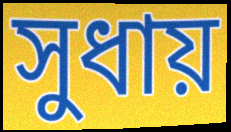
সুধায়